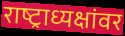
राष्ट्राध्यक्षांवर